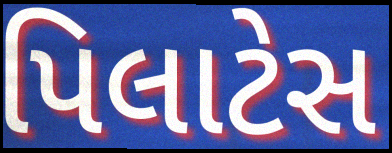
પિલાટેસ